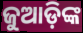
ଜୁଆଡ଼ିଙ୍କ